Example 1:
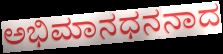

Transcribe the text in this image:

ಅಭಿಮಾನಧನನಾದ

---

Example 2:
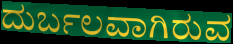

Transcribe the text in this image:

ದುರ್ಬಲವಾಗಿರುವ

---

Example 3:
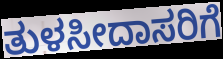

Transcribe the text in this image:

ತುಳಸೀದಾಸರಿಗೆ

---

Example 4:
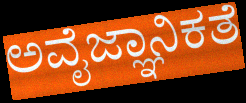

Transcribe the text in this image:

ಅವೈಜ್ಞಾನಿಕತೆ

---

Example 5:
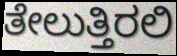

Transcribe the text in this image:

ತೇಲುತ್ತಿರಲಿ